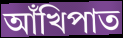
আঁখিপাত